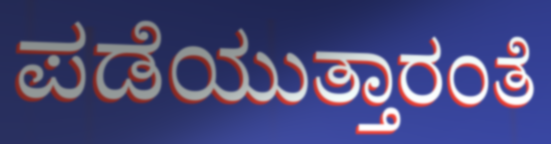
ಪಡೆಯುತ್ತಾರಂತೆ